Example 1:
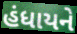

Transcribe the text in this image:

હંધાયને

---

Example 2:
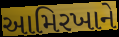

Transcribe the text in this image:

આમિરખાને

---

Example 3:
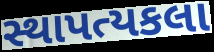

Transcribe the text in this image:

સ્થાપત્યકલા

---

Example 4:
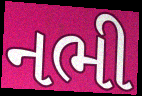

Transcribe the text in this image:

નભી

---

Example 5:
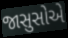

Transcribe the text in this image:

જાસુસોએ